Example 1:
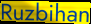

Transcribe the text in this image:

Ruzbihan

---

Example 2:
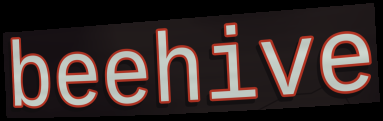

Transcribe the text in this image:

beehive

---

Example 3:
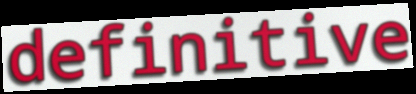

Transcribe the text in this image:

definitive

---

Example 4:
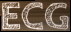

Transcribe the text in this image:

ECG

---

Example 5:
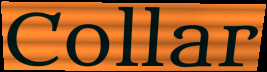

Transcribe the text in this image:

Collar